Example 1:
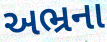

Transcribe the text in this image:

અભ્રના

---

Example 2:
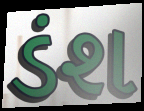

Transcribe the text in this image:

ડંશ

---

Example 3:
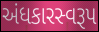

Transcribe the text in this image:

અંધકારસ્વરૂપ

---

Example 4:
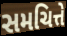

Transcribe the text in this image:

સમચિત્તે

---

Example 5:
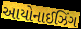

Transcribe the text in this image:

આયોનાઈઝિંગ